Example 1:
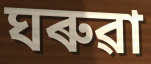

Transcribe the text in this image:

ঘৰুৱা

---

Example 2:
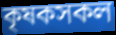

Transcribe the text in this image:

কৃষকসকল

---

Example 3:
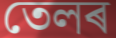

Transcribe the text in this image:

তেলৰ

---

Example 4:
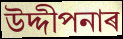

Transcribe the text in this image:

উদ্দীপনাৰ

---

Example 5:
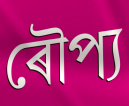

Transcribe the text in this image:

ৰৌপ্য